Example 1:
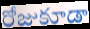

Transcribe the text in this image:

రోజుకూడా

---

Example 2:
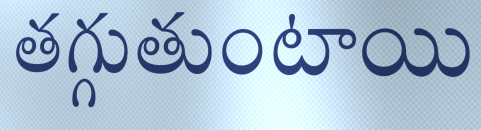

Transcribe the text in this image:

తగ్గుతుంటాయి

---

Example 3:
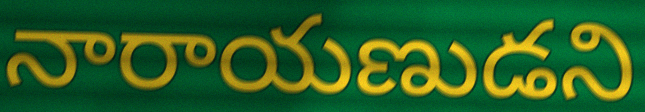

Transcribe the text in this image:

నారాయణుడని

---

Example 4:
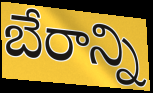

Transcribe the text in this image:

బేరాన్ని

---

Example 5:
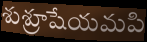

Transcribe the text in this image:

శుశ్రూషేయమపి